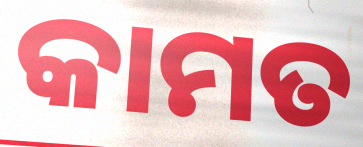
କାମତ